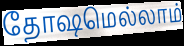
தோஷமெல்லாம்